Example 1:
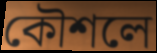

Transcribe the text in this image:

কৌশলে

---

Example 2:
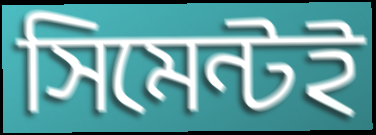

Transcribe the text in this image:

সিমেন্টই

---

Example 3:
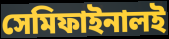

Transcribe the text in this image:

সেমিফাইনালই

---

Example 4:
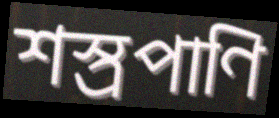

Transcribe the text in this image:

শস্ত্রপাণি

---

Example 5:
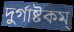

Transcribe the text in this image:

দুর্গাষ্টকম্